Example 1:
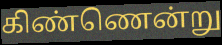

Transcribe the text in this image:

கிண்ணென்று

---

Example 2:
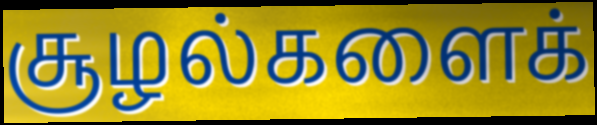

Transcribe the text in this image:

சூழல்களைக்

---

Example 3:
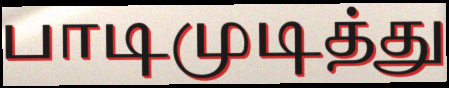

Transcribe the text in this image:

பாடிமுடித்து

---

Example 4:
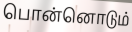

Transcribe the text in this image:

பொன்னொடும்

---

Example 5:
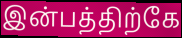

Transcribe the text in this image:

இன்பத்திற்கே